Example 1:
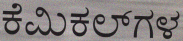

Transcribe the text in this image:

ಕೆಮಿಕಲ್‌ಗಳ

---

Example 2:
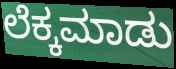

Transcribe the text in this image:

ಲೆಕ್ಕಮಾಡು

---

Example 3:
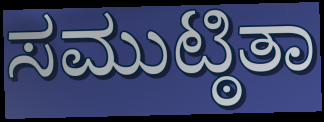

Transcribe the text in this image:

ಸಮುಟ್ಠಿತಾ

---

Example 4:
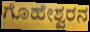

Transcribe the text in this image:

ಗೊಹೇಶ್ವರನ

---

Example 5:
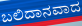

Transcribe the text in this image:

ಬಲಿದಾನವಾದ